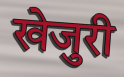
खेजुरी